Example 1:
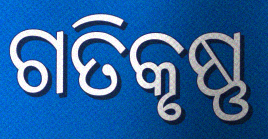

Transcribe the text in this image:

ଗତିକୃଷ୍ଣ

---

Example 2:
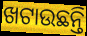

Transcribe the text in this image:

ଖଟାଉଛନ୍ତି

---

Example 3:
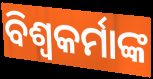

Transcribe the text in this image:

ବିଶ୍ୱକର୍ମାଙ୍କ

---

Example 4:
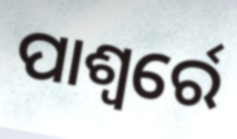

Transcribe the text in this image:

ପାଶ୍ୱର୍ରେ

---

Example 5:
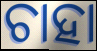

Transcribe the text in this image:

ଚାହା